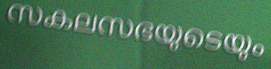
സകലസഭയുടെയും